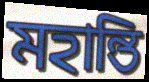
মহান্তি